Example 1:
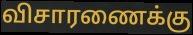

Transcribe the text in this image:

விசாரணைக்கு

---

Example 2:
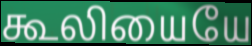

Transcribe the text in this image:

கூலியையே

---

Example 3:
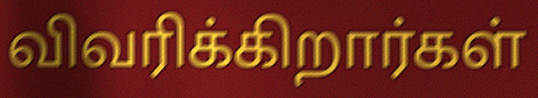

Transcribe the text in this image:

விவரிக்கிறார்கள்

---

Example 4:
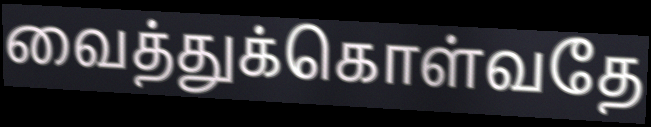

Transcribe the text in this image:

வைத்துக்கொள்வதே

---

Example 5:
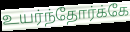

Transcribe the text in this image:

உயர்ந்தோர்க்கே